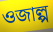
ওজাল্প